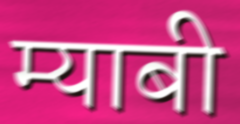
म्याबी